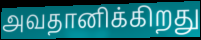
அவதானிக்கிறது